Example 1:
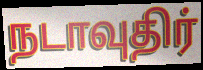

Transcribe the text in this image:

நடாவுதிர்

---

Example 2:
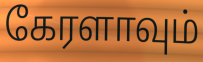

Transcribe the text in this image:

கேரளாவும்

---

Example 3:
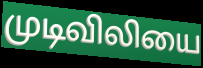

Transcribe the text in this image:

முடிவிலியை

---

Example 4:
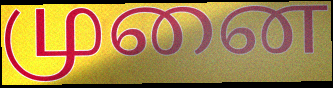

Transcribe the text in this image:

முனை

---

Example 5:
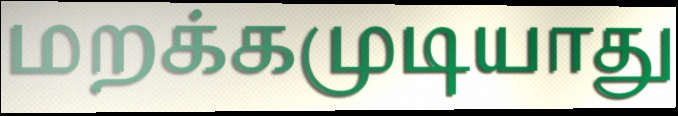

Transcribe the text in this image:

மறக்கமுடியாது